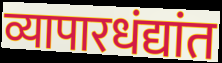
व्यापारधंद्यांत